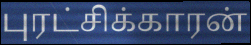
புரட்சிக்காரன்